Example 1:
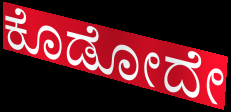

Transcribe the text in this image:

ಕೊಡೋದೇ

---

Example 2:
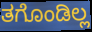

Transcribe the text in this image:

ತಗೊಂಡಿಲ್ಲ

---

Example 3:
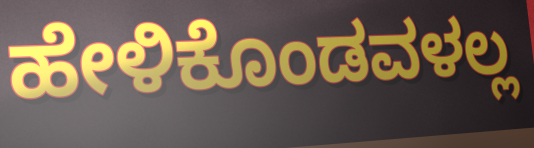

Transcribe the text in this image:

ಹೇಳಿಕೊಂಡವಳಲ್ಲ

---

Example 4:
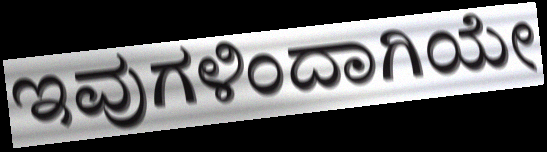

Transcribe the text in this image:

ಇವುಗಳಿಂದಾಗಿಯೇ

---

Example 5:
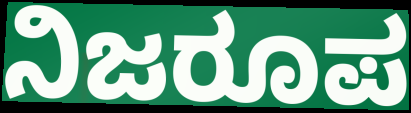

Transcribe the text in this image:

ನಿಜರೂಪ